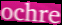
ochre